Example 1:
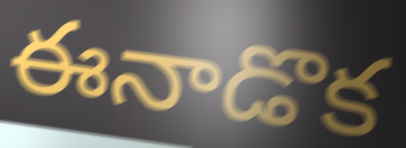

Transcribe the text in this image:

ఈనాడొక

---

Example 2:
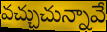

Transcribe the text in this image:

వచ్చుచున్నావే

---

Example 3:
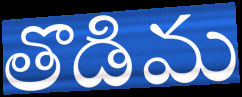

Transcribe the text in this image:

తొడిమ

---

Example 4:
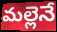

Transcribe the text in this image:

మల్లెనే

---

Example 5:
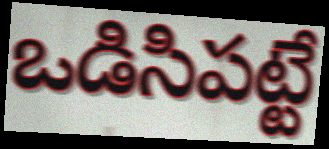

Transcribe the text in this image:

ఒడిసిపట్టే